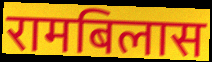
रामबिलास